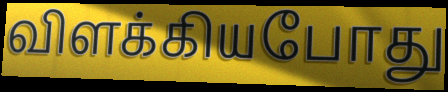
விளக்கியபோது